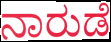
ನಾರುಡೆ